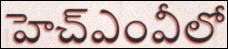
హెచ్ఎంవీలో